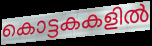
കൊട്ടകകളിൽ